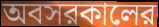
অবসরকালের